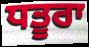
ਧਤੂਰਾ